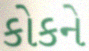
કોકને